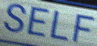
SELF